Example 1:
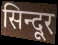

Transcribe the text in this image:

सिन्दूर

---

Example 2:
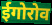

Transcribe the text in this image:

ईगोरोव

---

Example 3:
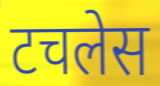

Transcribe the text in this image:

टचलेस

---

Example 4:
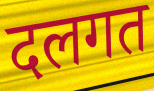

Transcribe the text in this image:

दलगत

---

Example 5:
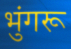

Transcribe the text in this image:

भुंगरू